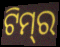
ଟିମ୍‌ର